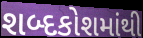
શબ્દકોશમાંથી